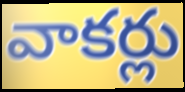
వాకర్లు